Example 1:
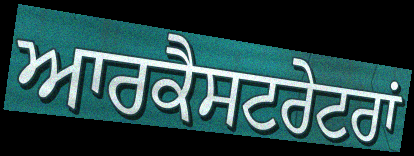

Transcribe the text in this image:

ਆਰਕੈਸਟਰੇਟਰਾਂ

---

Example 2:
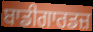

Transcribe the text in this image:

ਬਾਡੀਗਾਰਡਜ਼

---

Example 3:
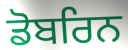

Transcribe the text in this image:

ਡੋਬਰਿਨ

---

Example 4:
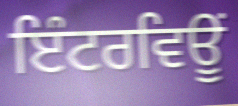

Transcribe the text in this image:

ਇੰਟਰਵਿਊਂ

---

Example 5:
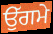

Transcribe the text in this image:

ਉੱਗਮੇ